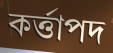
কৰ্ত্তাপদ